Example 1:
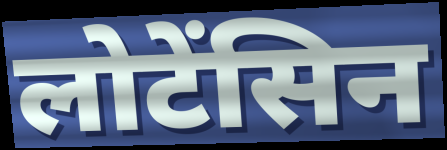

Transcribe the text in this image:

लोटेंसिन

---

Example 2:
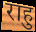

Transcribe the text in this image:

राहु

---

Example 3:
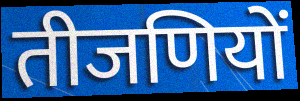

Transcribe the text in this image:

तीजणियों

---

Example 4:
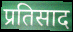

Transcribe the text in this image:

प्रतिसाद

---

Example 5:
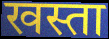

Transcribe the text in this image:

खस्ता